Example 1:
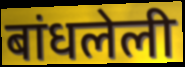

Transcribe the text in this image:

बांधलेली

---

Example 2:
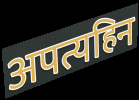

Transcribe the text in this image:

अपत्यहिन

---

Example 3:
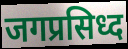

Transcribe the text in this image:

जगप्रसिध्द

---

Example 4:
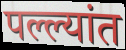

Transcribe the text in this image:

पल्ल्यांत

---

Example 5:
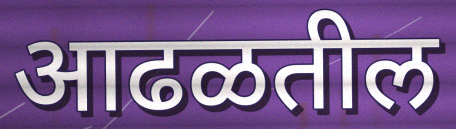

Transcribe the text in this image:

आढळतील